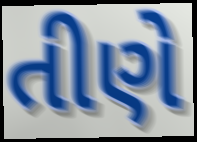
તીણે